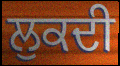
ਲੁਕਦੀ